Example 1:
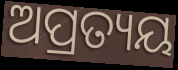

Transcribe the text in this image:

ଅପ୍ରତ୍ୟୟ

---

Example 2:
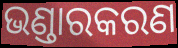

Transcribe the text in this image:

ଭଣ୍ଡାରକରଣ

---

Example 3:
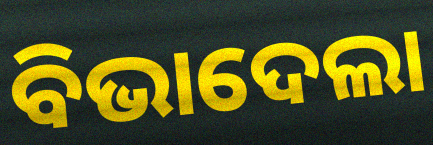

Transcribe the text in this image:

ବିଭାଦେଲା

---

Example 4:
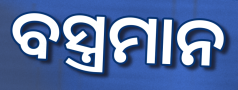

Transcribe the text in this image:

ବସ୍ତ୍ରମାନ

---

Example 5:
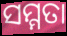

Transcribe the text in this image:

ସମ୍ମତା